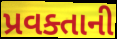
પ્રવક્તાની